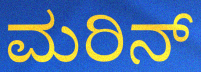
ಮರಿನ್